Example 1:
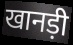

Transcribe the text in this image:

खानड़ी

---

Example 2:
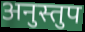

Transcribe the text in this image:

अनुस्तुप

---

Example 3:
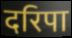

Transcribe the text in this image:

दरिपा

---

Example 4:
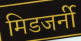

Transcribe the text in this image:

मिडजर्नी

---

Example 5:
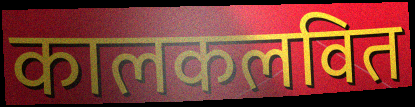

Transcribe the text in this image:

कालकलवित